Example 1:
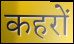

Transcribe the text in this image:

कहरों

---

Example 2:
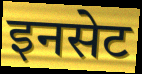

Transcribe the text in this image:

इनसेट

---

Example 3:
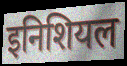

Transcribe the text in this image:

इनिशियल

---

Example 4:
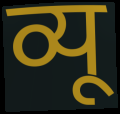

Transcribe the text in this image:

व्यू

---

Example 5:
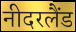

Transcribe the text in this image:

नीदरलैंड